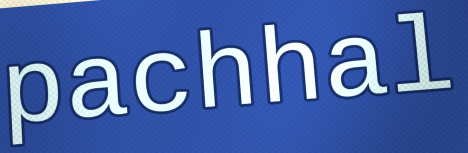
pachhal